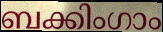
ബക്കിംഗാം